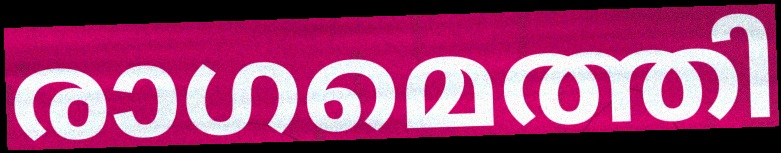
രാഗമെത്തി